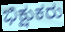
ಭಿಕ್ಷುಕರು